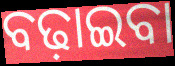
ବଢ଼ାଇବା